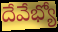
దేవేభ్యో